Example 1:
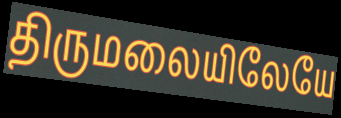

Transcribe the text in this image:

திருமலையிலேயே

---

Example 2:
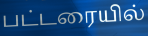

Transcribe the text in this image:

பட்டரையில்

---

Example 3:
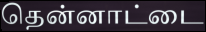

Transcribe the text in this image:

தென்னாட்டை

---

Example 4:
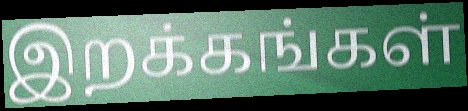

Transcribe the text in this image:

இறக்கங்கள்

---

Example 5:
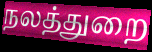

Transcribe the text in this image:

நலத்துறை